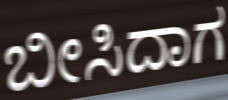
ಬೀಸಿದಾಗ